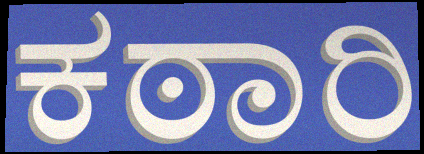
ಕಠಾರಿ